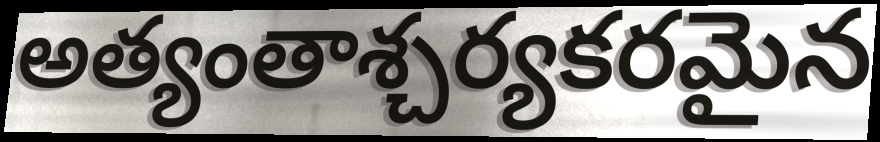
అత్యంతాశ్చర్యకరమైన